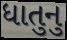
ધાતુનુ